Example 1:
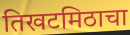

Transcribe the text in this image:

तिखटमिठाचा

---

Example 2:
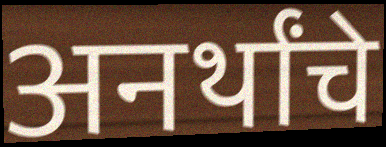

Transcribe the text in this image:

अनर्थांचे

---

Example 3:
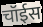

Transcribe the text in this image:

चॉईस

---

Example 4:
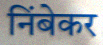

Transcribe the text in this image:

निंबेकर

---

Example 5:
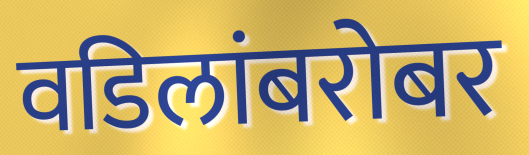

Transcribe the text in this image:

वडिलांबरोबर